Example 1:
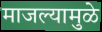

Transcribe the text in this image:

माजल्यामुळे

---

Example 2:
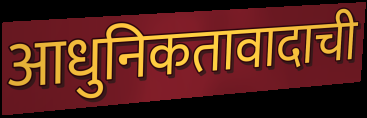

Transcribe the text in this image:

आधुनिकतावादाची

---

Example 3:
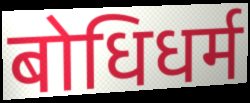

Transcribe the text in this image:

बोधिधर्म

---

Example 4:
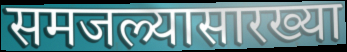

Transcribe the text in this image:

समजल्यासारख्या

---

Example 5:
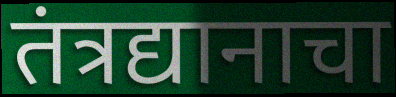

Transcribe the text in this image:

तंत्रद्यानाचा